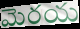
మెరయ